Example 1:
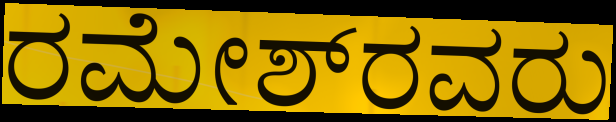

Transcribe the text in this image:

ರಮೇಶ್‌ರವರು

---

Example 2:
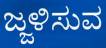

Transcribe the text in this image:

ಜ್ಜಳಿಸುವ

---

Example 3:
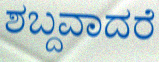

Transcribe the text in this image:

ಶಬ್ದವಾದರೆ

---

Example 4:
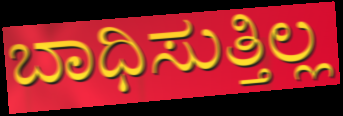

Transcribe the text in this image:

ಬಾಧಿಸುತ್ತಿಲ್ಲ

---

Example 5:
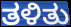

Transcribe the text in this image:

ತಳಿತು